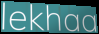
lekhaa